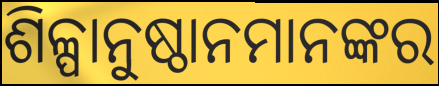
ଶିଳ୍ପାନୁଷ୍ଠାନମାନଙ୍କର